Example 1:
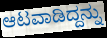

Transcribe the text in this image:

ಆಟವಾಡಿದ್ದನ್ನು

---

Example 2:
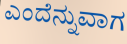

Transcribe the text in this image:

ಎಂದೆನ್ನುವಾಗ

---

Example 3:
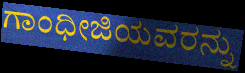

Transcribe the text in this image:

ಗಾಂಧೀಜಿಯವರನ್ನು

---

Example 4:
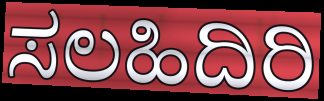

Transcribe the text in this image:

ಸಲಹಿದಿರಿ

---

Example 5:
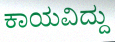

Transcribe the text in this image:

ಕಾಯವಿದ್ದು